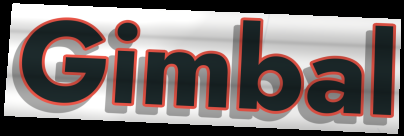
Gimbal